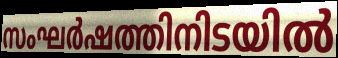
സംഘർഷത്തിനിടയിൽ